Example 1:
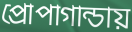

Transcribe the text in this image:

প্রোপাগান্ডায়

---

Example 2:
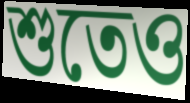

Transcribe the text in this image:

শুতেও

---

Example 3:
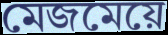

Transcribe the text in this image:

মেজমেয়ে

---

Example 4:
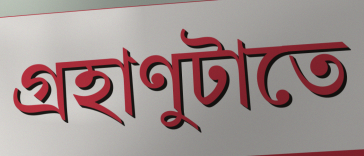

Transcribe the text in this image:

গ্রহাণুটাতে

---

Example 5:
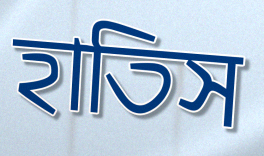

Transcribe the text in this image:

হাতিস